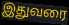
இதுவரை